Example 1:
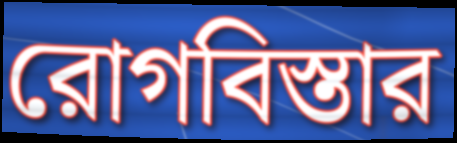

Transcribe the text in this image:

রোগবিস্তার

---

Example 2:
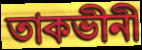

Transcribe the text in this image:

তাকভীনী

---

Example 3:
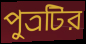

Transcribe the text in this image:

পুত্রটির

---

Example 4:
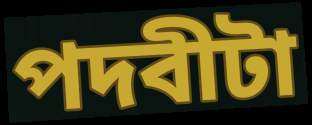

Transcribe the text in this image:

পদবীটা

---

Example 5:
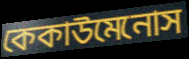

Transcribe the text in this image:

কেকাউমেনোস